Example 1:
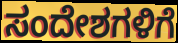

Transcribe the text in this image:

ಸಂದೇಶಗಳಿಗೆ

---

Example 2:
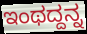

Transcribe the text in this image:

ಇಂಥದ್ದನ್ನ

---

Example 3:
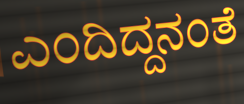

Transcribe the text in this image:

ಎಂದಿದ್ದನಂತೆ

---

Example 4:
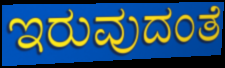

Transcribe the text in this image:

ಇರುವುದಂತೆ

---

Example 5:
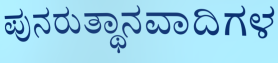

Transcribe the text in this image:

ಪುನರುತ್ಥಾನವಾದಿಗಳ